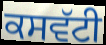
ਕਸਵੱਟੀ